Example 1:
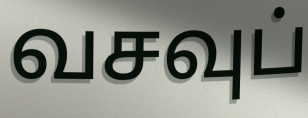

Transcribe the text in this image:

வசவுப்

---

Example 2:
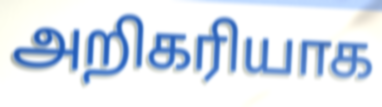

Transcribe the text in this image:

அறிகரியாக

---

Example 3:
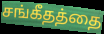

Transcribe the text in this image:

சங்கீதத்தை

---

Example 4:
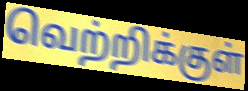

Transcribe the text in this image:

வெற்றிக்குள்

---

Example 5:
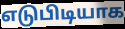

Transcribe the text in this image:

எடுபிடியாக